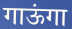
गाऊंगा